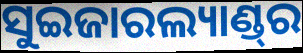
ସୁଇଜାରଲ୍ୟାଣ୍ଡ୍‌ର